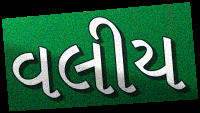
વલીય